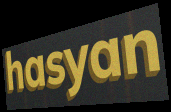
hasyan